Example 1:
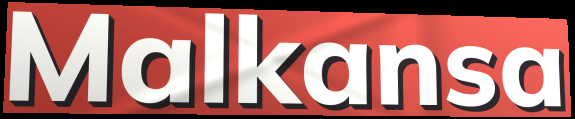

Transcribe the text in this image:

Malkansa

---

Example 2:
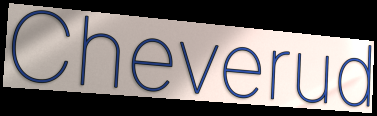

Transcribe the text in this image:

Cheverud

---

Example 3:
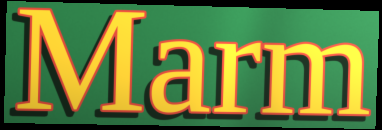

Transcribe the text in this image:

Marm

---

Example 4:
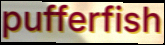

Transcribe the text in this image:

pufferfish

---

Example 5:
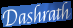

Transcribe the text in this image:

Dashrath